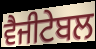
ਵੈਜੀਟੇਬਲ